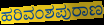
ಹರಿವಂಶಪುರಾಣ